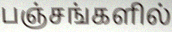
பஞ்சங்களில்